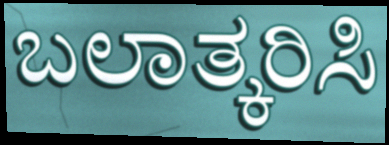
ಬಲಾತ್ಕರಿಸಿ